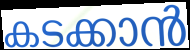
കടക്കാൻ